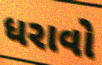
ધરાવો